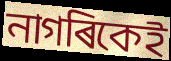
নাগৰিকেই